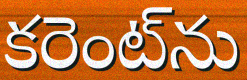
కరెంట్‌ను